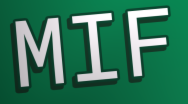
MIF